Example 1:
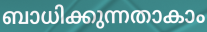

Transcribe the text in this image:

ബാധിക്കുന്നതാകാം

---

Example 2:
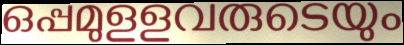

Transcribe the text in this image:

ഒപ്പമുളളവരുടെയും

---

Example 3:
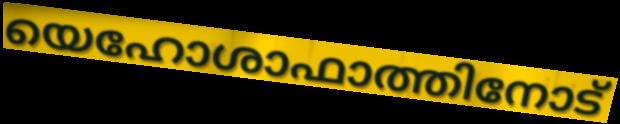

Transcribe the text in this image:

യെഹോശാഫാത്തിനോട്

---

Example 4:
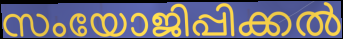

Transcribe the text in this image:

സംയോജിപ്പിക്കൽ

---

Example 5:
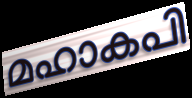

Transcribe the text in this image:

മഹാകപി